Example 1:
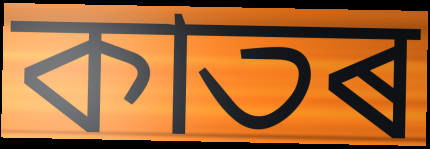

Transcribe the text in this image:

কাতৰ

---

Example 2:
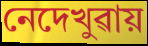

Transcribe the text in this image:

নেদেখুৱায়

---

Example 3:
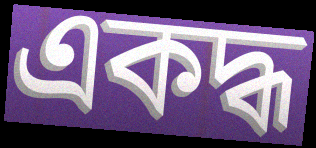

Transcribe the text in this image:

একদ্ধ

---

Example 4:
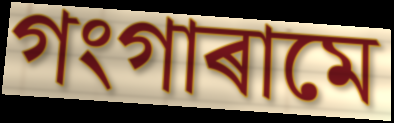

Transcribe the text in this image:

গংগাৰামে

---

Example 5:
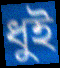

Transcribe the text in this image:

ধুই